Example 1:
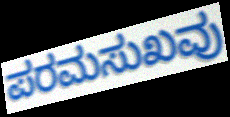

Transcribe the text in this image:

ಪರಮಸುಖವು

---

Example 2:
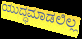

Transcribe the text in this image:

ಯುದ್ಧಮಾಡಲಿಲ್ಲ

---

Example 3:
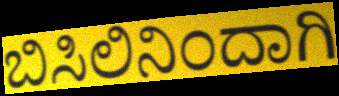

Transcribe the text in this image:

ಬಿಸಿಲಿನಿಂದಾಗಿ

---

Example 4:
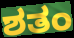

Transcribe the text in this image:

ಶತಂ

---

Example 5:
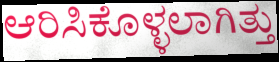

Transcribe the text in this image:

ಆರಿಸಿಕೊಳ್ಳಲಾಗಿತ್ತು